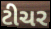
ટીચર